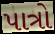
પાત્રો